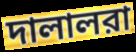
দালালরা